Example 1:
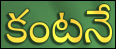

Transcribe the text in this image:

కంటనే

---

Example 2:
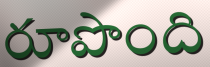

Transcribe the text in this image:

రూపొంది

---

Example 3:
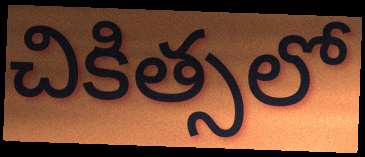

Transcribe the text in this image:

చికిత్సలో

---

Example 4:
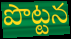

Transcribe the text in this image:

పొట్టన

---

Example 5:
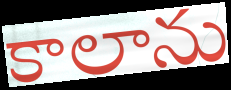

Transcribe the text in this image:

కాలాను